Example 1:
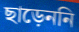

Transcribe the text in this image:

ছাড়েননি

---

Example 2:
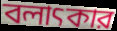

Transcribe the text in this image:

বলাৎকার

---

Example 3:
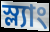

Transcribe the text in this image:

স্ল্যাং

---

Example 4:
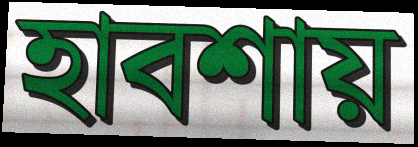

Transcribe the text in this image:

হাবশায়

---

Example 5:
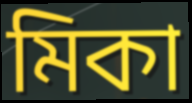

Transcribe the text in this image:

মিকা